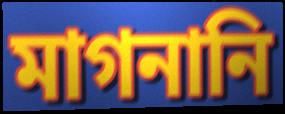
মাগনানি